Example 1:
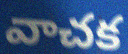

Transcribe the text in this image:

వాచక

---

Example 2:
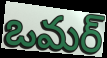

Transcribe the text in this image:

ఒమర్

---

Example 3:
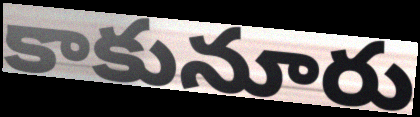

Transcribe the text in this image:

కాకునూరు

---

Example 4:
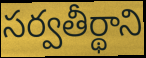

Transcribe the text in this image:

సర్వతీర్థాని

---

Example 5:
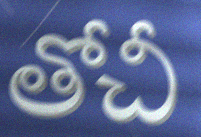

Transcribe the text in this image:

తోచీ